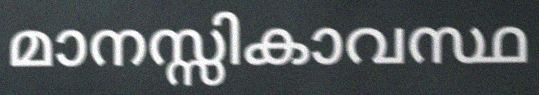
മാനസ്സികാവസ്ഥ